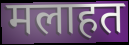
मलाहत